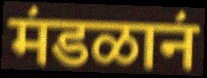
मंडळानं